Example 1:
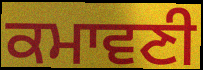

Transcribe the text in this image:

ਕਮਾਵਣੀ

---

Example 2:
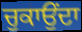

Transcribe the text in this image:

ਚੁਕਾਉਂਦਾ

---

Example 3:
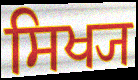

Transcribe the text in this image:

ਸਿਖ੍ਯ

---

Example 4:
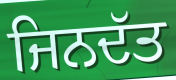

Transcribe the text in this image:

ਜਿਨਦੱਤ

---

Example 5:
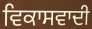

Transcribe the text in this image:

ਵਿਕਾਸਵਾਦੀ